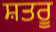
ਸ਼ਤਰੂ